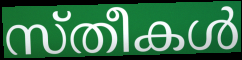
സ്തീകൾ